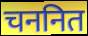
चननित